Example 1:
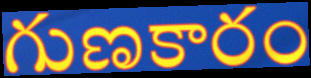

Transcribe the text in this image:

గుణకారం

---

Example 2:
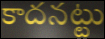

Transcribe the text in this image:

కాదనట్టు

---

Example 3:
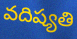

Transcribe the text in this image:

వదిష్యతి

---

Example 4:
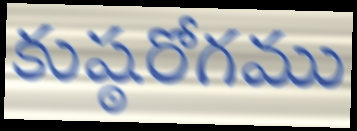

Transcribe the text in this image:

కుష్ఠరోగము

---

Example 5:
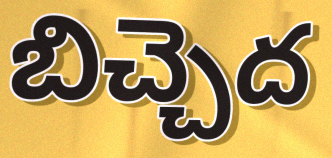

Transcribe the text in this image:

బిచ్చెద